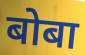
बोबा